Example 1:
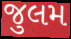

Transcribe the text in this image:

જુલમ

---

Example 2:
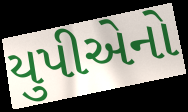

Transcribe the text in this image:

યુપીએનો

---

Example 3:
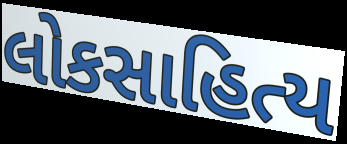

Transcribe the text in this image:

લોકસાહિત્ય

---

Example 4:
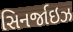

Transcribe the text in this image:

સિનર્જાઇઝ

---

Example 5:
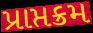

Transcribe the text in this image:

પ્રાપ્તક્રમ